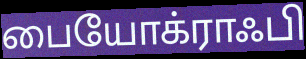
பையோக்ராஃபி